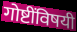
गोष्टींविषयी